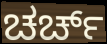
ಚರ್ಚ್